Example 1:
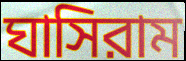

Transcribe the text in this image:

ঘাসিরাম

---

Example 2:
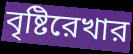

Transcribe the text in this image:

বৃষ্টিরেখার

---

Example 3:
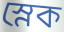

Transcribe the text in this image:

স্নেক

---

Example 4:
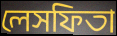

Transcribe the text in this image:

লেসফিতা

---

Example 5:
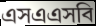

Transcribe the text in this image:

এসএএসবি